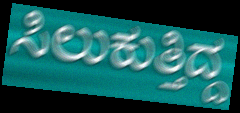
ಸಿಲುಕುತ್ತಿದ್ದ